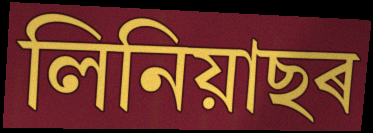
লিনিয়াছৰ